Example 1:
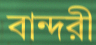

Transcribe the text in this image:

বান্দরী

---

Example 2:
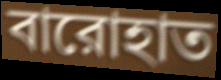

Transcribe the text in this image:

বারোহাত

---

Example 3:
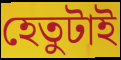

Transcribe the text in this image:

হেতুটাই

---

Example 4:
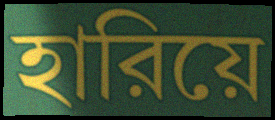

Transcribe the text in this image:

হারিয়ে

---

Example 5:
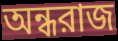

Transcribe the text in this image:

অন্ধরাজ